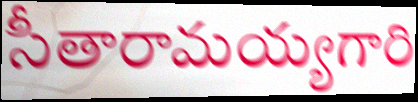
సీతారామయ్యగారి